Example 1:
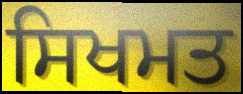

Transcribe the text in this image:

ਸਿਖਮਤ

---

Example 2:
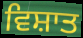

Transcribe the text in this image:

ਵਿਸ਼ਾਤ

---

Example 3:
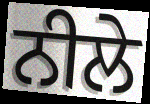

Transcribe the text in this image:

ਨੀਲੇ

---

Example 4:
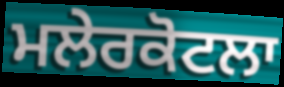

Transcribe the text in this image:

ਮਲੇਰਕੋਟਲਾ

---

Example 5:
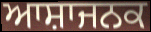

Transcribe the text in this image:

ਆਸ਼ਾਜਨਕ